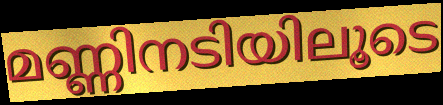
മണ്ണിനടിയിലൂടെ